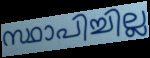
സ്ഥാപിച്ചില്ല